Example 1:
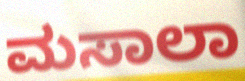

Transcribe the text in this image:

ಮಸಾಲಾ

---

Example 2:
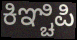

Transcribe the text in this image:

ಕಿಞ್ಚಿಪಿ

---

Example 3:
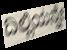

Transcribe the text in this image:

ದಿಲ್ಲಿಯನ್ನೇ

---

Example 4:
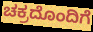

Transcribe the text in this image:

ಚಕ್ರದೊಂದಿಗೆ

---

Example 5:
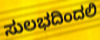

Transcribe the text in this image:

ಸುಲಭದಿಂದಲಿ